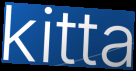
kitta